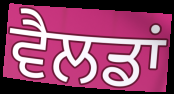
ਵੈਲਡਾਂ